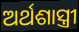
ଅର୍ଥଶାସ୍ତ୍ରୀ